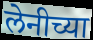
लेनीच्या